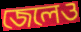
জেলেও